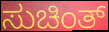
ಸುಚಿಂತ್